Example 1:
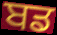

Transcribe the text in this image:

ਬਡ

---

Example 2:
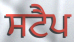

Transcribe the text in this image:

ਸਟੈਪ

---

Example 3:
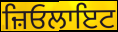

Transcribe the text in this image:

ਜ਼ਿਓਲਾਇਟ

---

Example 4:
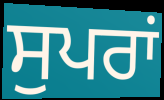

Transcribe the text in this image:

ਸੁਪਰਾਂ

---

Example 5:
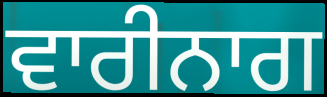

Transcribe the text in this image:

ਵਾਰੀਨਾਗ